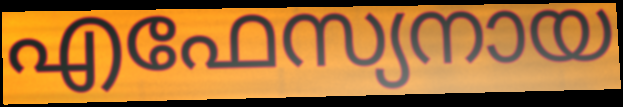
എഫേസ്യനായ